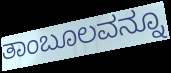
ತಾಂಬೂಲವನ್ನೂ